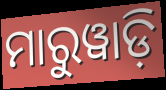
ମାରୁୱାଡ଼ି